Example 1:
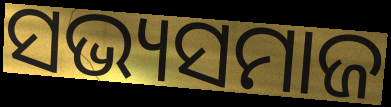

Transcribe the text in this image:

ସଭ୍ୟସମାଜ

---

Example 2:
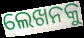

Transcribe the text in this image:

ଲେଖନକୁ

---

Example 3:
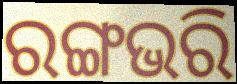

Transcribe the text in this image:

ରଙ୍ଗଭରି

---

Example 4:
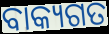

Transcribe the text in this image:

ବାକ୍ୟଗତ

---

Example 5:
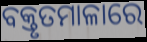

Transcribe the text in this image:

ବକ୍ତୃତମାଳାରେ